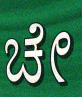
ಚೇ